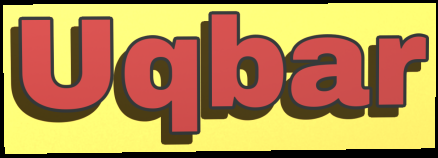
Uqbar